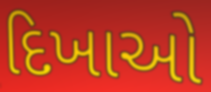
દિખાઓ